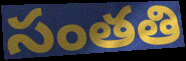
సంతతి